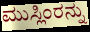
ಮುಸ್ಲಿಂರನ್ನು